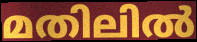
മതിലിൽ